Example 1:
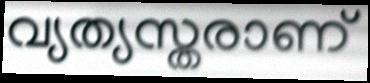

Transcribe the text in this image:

വ്യത്യസ്തരാണ്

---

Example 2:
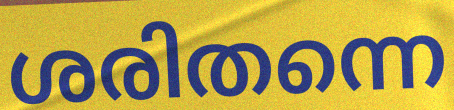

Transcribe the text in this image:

ശരിതന്നെ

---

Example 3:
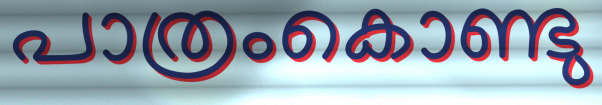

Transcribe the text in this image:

പാത്രംകൊണ്ടു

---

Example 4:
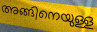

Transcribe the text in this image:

അങ്ങിനെയുള്ള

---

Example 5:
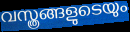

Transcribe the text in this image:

വസ്ത്രങ്ങളുടെയും